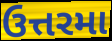
ઉત્તરમા